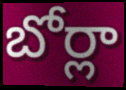
బోర్లా